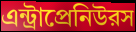
এন্ট্রাপ্রেনিউরস